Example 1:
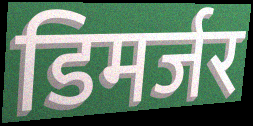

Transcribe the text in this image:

डिमर्जर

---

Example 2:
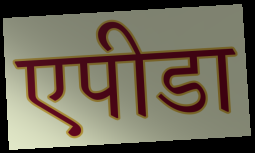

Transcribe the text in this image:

एपीडा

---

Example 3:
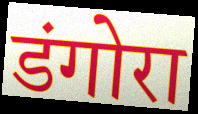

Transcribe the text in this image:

डंगोरा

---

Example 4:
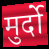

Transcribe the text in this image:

मुर्दो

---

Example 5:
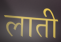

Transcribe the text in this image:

लाती